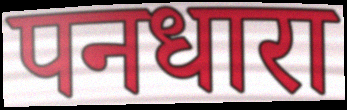
पनधारा